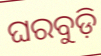
ଘରବୁଡ଼ି